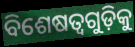
ବିଶେଷତ୍ୱଗୁଡ଼ିକୁ